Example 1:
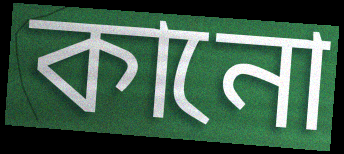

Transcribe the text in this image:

কানো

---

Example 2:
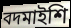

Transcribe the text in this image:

বদমাইশি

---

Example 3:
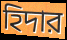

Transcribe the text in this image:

হিদার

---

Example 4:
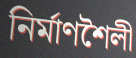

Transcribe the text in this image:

নির্মাণশৈলী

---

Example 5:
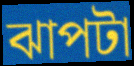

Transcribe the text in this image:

ঝাপটা